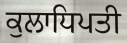
ਕੁਲਾਧਿਪਤੀ